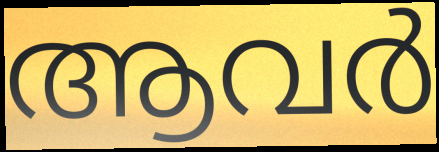
ആവർ